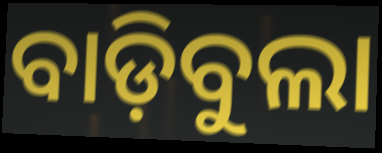
ବାଡ଼ିବୁଲା